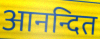
आनन्दित